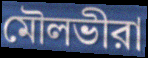
মৌলভীরা